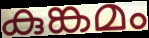
കുങ്കമം